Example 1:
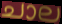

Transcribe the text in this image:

ചാല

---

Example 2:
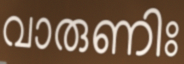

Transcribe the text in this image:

വാരുണിഃ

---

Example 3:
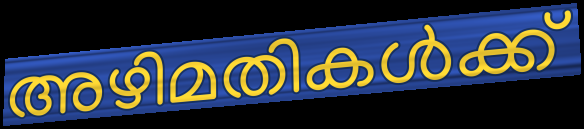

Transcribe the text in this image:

അഴിമതികൾക്ക്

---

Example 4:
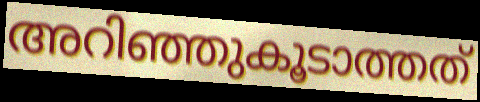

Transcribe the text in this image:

അറിഞ്ഞുകൂടാത്തത്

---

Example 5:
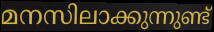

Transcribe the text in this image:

മനസിലാക്കുന്നുണ്ട്